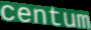
centum